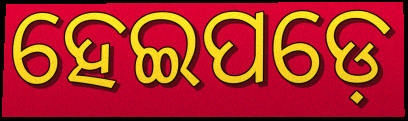
ହେଇପଡ଼େ